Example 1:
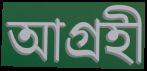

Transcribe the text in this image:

আগ্ৰহী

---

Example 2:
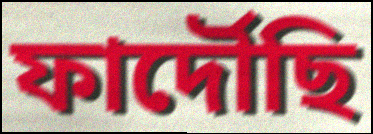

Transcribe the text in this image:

ফাৰ্দৌছি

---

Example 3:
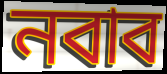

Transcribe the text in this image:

নবাব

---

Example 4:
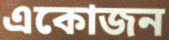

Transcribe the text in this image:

একোজন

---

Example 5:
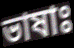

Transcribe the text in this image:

ভাষাঃ